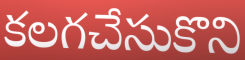
కలగచేసుకొని